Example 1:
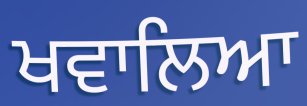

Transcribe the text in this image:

ਖਵਾਲਿਆ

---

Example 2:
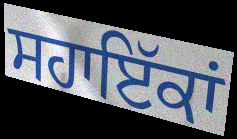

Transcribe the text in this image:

ਸਹਾਇੱਕਾਂ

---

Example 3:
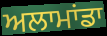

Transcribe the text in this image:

ਅਲਾਮਾਂਡਾ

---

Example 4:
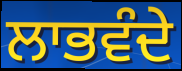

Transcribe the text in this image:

ਲਾਭਵੰਦੇ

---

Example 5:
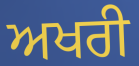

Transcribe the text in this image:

ਅਖਰੀ